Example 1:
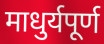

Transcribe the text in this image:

माधुर्यपूर्ण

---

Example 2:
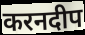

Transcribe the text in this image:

करनदीप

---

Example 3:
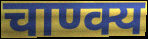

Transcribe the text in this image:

चाण्क्य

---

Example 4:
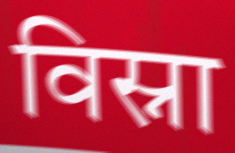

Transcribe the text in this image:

विस्ना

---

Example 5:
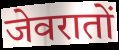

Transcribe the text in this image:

जेवरातों